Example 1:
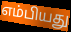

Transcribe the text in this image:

எம்பியது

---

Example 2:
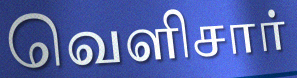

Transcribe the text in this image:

வெளிசார்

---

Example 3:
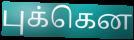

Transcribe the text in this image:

புக்கென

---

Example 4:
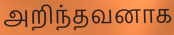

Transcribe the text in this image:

அறிந்தவனாக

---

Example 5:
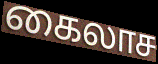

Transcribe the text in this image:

கைலாச